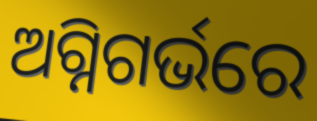
ଅଗ୍ନିଗର୍ଭରେ